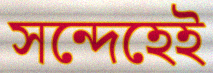
সন্দেহেই